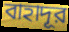
বাহাদূর